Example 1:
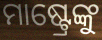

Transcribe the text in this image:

ମାଷ୍ଟ୍ରେଙ୍କୁ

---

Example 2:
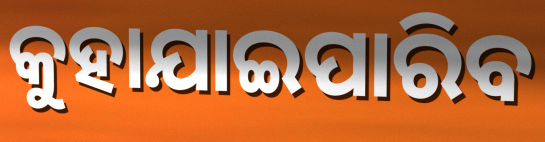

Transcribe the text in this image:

କୁହାଯାଇପାରିବ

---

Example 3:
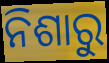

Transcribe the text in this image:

ନିଶାରୁ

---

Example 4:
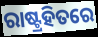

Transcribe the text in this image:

ରାଷ୍ଟ୍ରହିତରେ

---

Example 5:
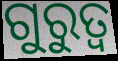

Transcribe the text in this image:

ଗୁରୁତ୍ବ